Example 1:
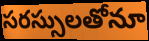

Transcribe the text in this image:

సరస్సులతోనూ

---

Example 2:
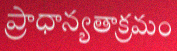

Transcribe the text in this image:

ప్రాధాన్యతాక్రమం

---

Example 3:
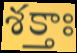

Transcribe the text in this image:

శక్తాః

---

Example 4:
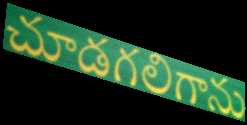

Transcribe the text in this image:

చూడగలిగాను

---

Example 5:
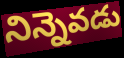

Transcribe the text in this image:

నిన్నెవడు